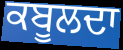
ਕਬੂਲਦਾ